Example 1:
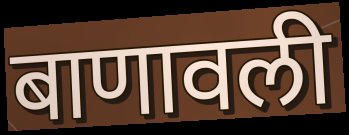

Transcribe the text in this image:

बाणावली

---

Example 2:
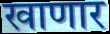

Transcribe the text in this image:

खाणार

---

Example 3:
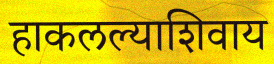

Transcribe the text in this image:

हाकलल्याशिवाय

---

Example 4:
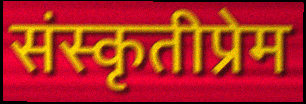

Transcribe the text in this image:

संस्कृतीप्रेम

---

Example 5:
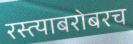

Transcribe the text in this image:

रस्त्याबरोबरच